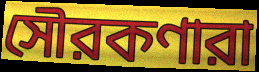
সৌরকণারা